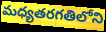
మధ్యతరగతిలోని